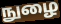
நுழை